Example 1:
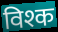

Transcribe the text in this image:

विश्क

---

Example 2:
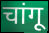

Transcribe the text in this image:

चांगू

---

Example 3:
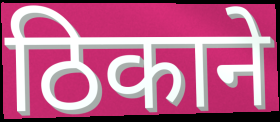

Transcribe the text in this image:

ठिकाने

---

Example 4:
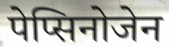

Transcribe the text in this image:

पेप्सिनोजेन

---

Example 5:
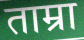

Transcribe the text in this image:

ताम्रा